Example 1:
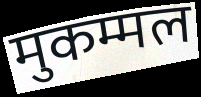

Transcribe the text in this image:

मुकम्मल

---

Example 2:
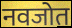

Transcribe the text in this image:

नवजोत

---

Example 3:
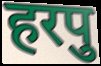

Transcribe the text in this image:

हरपु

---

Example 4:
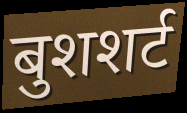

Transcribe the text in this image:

बुशशर्ट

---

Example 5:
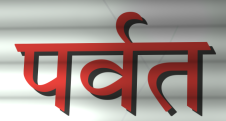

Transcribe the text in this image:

पर्वत